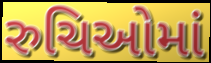
રુચિઓમાં